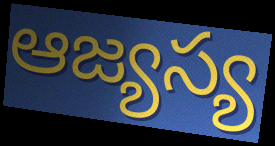
ఆజ్యస్య